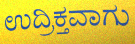
ಉದ್ರಿಕ್ತವಾಗು